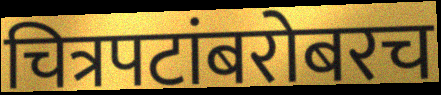
चित्रपटांबरोबरच